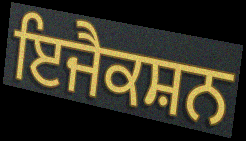
ਇਜੈਕਸ਼ਨ